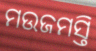
ମଉଜମସ୍ତି